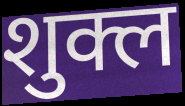
शुक्‍ल